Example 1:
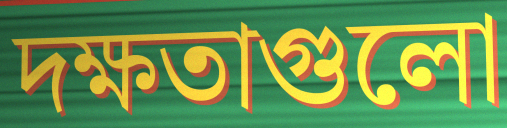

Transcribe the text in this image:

দক্ষতাগুলো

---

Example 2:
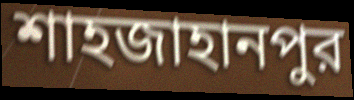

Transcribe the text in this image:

শাহজাহানপুর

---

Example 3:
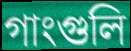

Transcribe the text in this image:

গাংগুলি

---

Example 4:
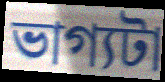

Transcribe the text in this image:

ভাগ্যটা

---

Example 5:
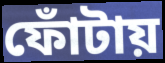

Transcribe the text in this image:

ফোঁটায়